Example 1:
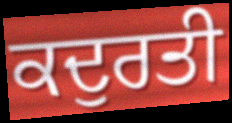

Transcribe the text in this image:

ਕਦੁਰਤੀ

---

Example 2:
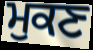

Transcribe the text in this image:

ਮੁਕਣ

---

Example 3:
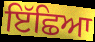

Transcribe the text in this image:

ਇੱਛਿਆ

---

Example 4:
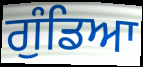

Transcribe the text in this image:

ਗੁੰਡਿਆ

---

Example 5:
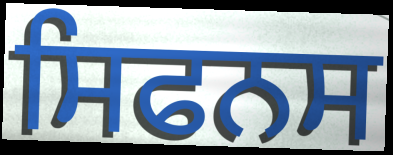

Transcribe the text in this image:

ਸਿਫਨਸ